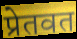
प्रेतवत